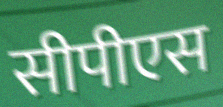
सीपीएस